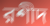
রশীদ